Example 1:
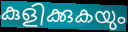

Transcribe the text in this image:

കുളിക്കുകയും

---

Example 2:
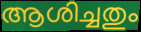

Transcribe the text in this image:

ആശിച്ചതും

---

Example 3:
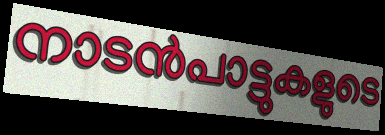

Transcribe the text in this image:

നാടൻപാട്ടുകളുടെ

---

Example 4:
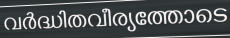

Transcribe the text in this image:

വർദ്ധിതവീര്യത്തോടെ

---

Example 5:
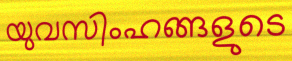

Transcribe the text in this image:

യുവസിംഹങ്ങളുടെ